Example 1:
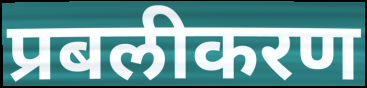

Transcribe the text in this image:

प्रबलीकरण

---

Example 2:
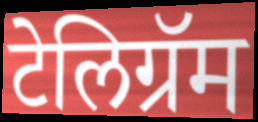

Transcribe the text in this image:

टेलिग्रॅम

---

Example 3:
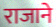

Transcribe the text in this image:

राजाने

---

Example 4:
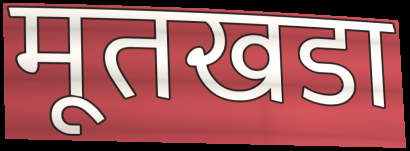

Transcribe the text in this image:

मूतखडा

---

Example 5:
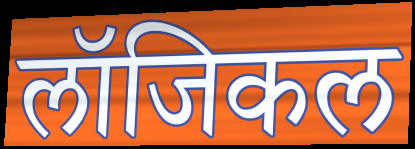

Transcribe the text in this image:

लॉजिकल